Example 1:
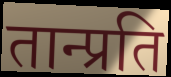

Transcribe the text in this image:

तान्प्रति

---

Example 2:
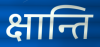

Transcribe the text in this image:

क्षान्ति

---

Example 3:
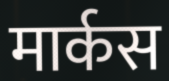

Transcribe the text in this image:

मार्कस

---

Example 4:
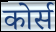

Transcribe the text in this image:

कोर्स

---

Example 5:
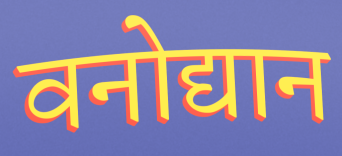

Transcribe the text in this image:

वनोद्यान